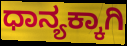
ಧಾನ್ಯಕ್ಕಾಗಿ